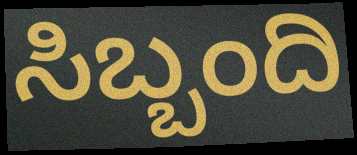
ಸಿಬ್ಬಂದಿ